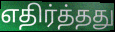
எதிர்த்தது